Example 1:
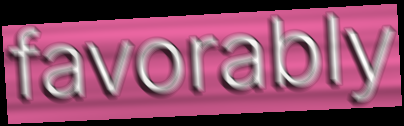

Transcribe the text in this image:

favorably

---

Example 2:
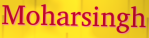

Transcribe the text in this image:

Moharsingh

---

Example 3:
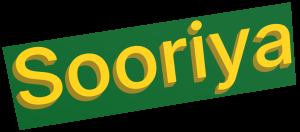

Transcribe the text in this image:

Sooriya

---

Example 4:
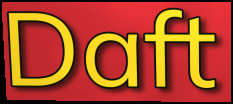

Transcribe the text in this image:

Daft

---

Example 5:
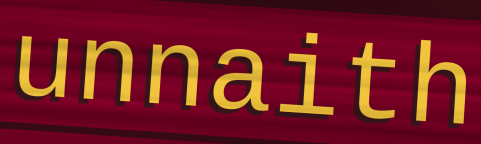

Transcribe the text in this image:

unnaith